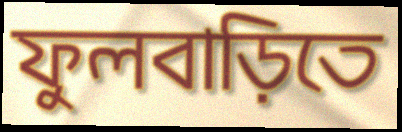
ফুলবাড়িতে